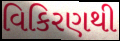
વિકિરણથી